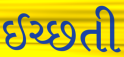
ઈચ્છતી